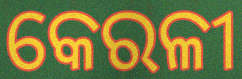
କେରଳୀ